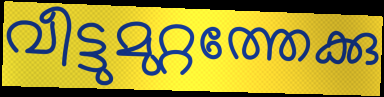
വീട്ടുമുറ്റത്തേക്കു